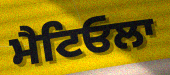
ਮੈਟਿਓਲਾ